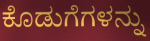
ಕೊಡುಗೆಗಳನ್ನು